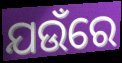
ଯଉଁରେ